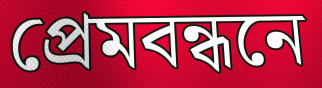
প্রেমবন্ধনে